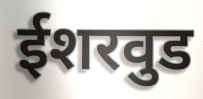
ईशरवुड